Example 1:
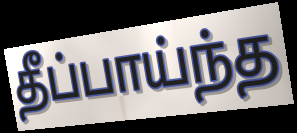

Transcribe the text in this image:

தீப்பாய்ந்த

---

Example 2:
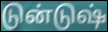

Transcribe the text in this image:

டுன்டுஷ்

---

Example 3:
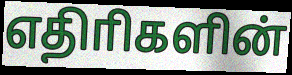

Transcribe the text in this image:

எதிரிகளின்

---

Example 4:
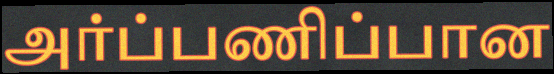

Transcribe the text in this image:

அர்ப்பணிப்பான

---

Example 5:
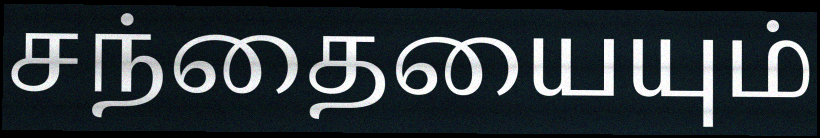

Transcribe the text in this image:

சந்தையையும்